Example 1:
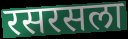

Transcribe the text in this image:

रसरसला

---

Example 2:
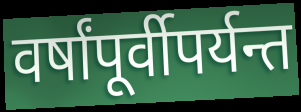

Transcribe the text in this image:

वर्षांपूर्वीपर्यन्त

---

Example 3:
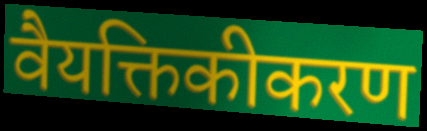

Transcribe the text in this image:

वैयक्तिकीकरण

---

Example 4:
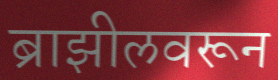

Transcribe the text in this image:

ब्राझीलवरून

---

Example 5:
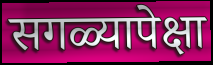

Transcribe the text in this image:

सगळ्यापेक्षा